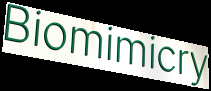
Biomimicry